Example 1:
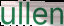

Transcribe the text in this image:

ullen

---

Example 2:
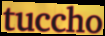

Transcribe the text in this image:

tuccho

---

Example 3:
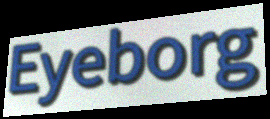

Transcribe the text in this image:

Eyeborg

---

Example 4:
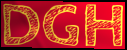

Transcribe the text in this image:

DGH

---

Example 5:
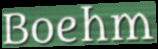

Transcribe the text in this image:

Boehm